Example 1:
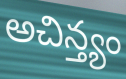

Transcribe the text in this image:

అచిన్త్యం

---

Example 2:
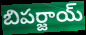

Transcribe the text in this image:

బిపర్జాయ్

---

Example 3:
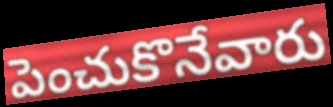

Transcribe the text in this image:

పెంచుకొనేవారు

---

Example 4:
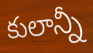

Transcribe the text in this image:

కులాన్నీ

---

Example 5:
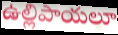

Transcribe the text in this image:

ఉల్లిపాయలూ